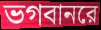
ভগবানরে